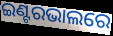
ଇଣ୍ଟରଭାଲରେ